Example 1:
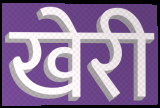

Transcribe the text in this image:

खेरी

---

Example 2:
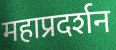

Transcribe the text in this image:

महाप्रदर्शन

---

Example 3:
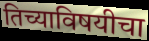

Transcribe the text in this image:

तिच्याविषयीचा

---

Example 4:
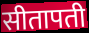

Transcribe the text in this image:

सीतापती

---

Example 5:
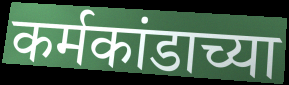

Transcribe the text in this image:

कर्मकांडाच्या